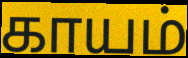
காயம்